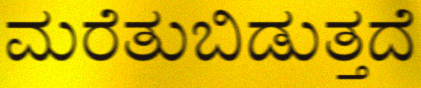
ಮರೆತುಬಿಡುತ್ತದೆ